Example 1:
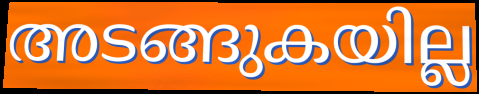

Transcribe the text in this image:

അടങ്ങുകയില്ല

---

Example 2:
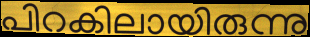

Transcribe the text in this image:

പിറകിലായിരുന്നു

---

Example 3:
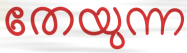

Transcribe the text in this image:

തേയുന്ന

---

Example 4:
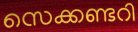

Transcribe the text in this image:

സെക്കണ്ടറി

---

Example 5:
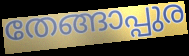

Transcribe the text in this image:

തേങ്ങാപ്പുര